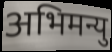
अभिमन्यु